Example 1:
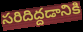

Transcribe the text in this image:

సరిదిద్దడానికి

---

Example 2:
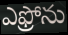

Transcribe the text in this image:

ఎఫ్రోను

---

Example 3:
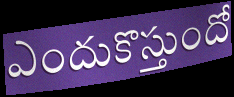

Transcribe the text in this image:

ఎందుకొస్తుందో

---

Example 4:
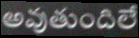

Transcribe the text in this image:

అవుతుందిలే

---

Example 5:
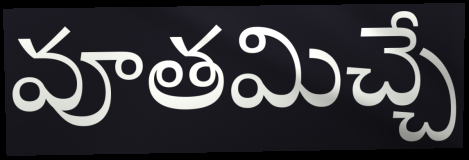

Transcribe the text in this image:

వూతమిచ్చే